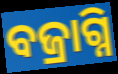
ବଜ୍ରାଗ୍ନି